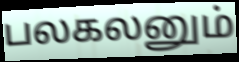
பலகலனும்